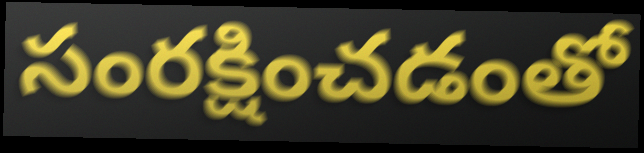
సంరక్షించడంతో